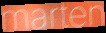
marten